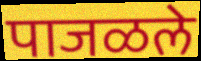
पाजळले